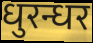
धुरन्धर